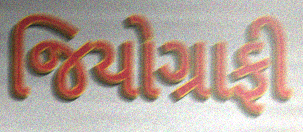
જિયોગ્રાફી